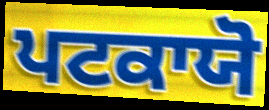
ਪਟਕਾਯੋ